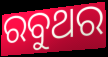
ରବୁଥର